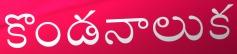
కొండనాలుక